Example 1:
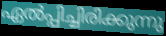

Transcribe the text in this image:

ഏൽപ്പിച്ചിരിക്കുന്നു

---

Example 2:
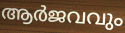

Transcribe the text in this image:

ആർജവവും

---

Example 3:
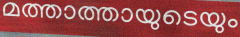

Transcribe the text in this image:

മത്താത്തായുടെയും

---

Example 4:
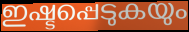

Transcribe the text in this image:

ഇഷ്ടപ്പെടുകയും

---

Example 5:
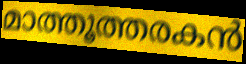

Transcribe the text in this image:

മാത്തൂത്തരകൻ